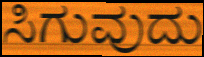
ಸಿಗುವುದು